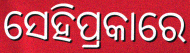
ସେହିପ୍ରକାରେ